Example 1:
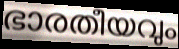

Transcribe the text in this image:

ഭാരതീയവും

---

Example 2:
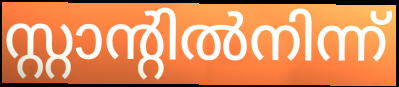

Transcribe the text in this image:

സ്റ്റാന്റിൽനിന്ന്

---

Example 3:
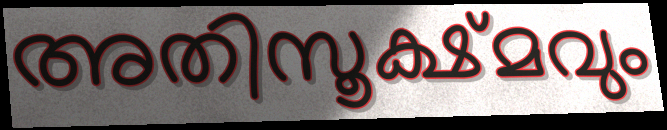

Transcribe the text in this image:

അതിസൂക്ഷ്മവും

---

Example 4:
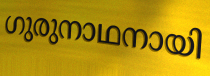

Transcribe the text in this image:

ഗുരുനാഥനായി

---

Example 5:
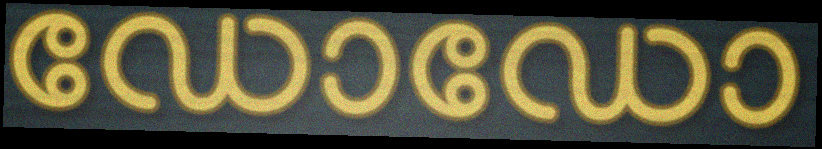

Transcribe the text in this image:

ഡോഡോ